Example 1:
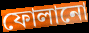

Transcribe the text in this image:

ফোলানো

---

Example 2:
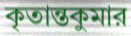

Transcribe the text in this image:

কৃতান্তকুমার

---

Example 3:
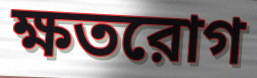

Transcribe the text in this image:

ক্ষতরোগ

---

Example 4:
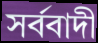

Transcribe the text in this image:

সর্ববাদী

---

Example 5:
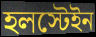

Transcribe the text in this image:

হলস্টেইন